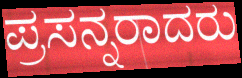
ಪ್ರಸನ್ನರಾದರು